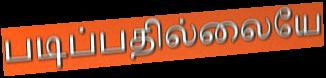
படிப்பதில்லையே